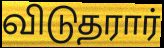
விடுதரார்